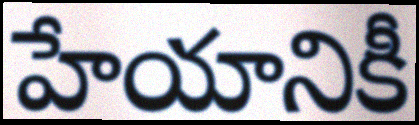
హేయానికీ